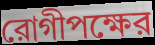
রোগীপক্ষের